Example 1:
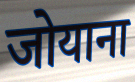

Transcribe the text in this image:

जोयाना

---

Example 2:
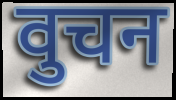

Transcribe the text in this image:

वुचन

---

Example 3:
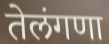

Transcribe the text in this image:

तेलंगणा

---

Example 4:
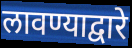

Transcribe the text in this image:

लावण्याद्वारे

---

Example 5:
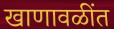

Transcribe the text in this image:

खाणावळींत